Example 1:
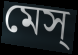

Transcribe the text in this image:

মেস্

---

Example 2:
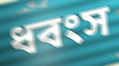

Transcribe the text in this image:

ধবংস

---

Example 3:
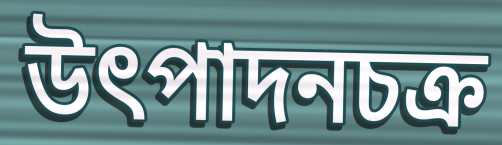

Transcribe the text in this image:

উৎপাদনচক্র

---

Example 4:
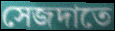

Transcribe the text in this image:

সেজদাতে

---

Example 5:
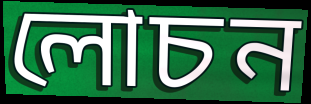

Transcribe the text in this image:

লোচন